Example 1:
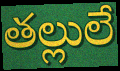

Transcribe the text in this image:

తల్లులే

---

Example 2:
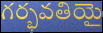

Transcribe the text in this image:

గర్భవతియై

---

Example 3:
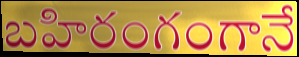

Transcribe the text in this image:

బహిరంగంగానే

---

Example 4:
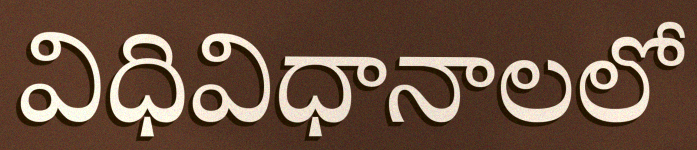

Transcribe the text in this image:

విధివిధానాలలో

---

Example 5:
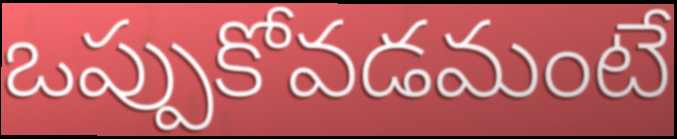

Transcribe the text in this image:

ఒప్పుకోవడమంటే